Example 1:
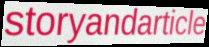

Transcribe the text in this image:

storyandarticle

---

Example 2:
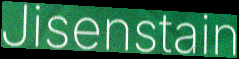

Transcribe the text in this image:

Jisenstain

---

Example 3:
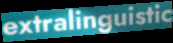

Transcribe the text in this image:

extralinguistic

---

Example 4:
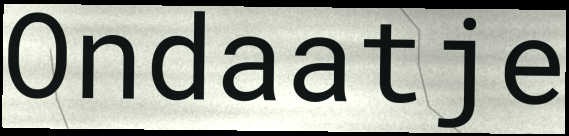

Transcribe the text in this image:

Ondaatje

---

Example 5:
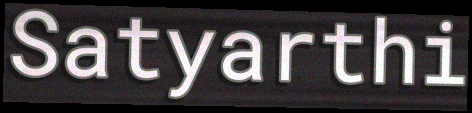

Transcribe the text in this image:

Satyarthi